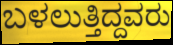
ಬಳಲುತ್ತಿದ್ದವರು